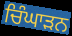
ਚਿੰਘਾੜਨ